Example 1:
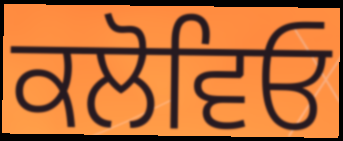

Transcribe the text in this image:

ਕਲੋਵਿਓ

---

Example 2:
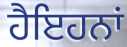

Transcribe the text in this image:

ਹੈਇਹਨਾਂ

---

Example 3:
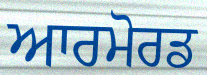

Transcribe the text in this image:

ਆਰਮੋਰਡ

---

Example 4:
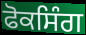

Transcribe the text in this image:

ਫੋਕਸਿੰਗ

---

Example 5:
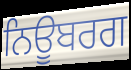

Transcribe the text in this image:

ਨਿਊਬਰਗ